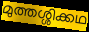
മുത്തശ്ശിക്കഥ